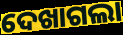
ଦେଖାଗଲା